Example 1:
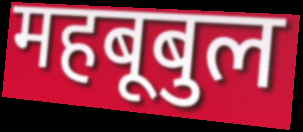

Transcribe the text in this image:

महबूबुल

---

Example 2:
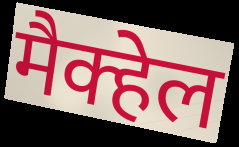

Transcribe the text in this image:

मैक्हेल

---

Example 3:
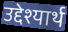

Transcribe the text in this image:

उद्देश्यार्थ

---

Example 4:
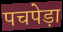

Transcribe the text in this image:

पचपेड़ा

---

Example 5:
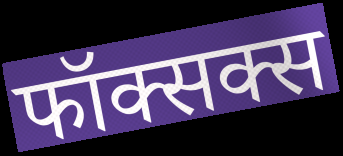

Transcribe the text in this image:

फॉक्सक्स